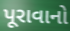
પૂરાવાનો